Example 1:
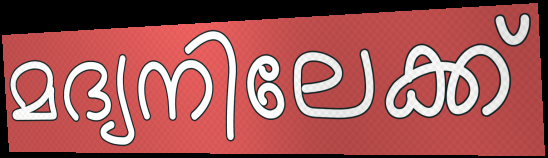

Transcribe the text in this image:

മദ്യനിലേക്ക്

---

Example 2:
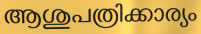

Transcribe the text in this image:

ആശുപത്രിക്കാര്യം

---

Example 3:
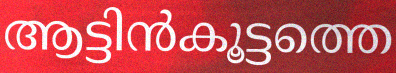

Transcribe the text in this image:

ആട്ടിൻകൂട്ടത്തെ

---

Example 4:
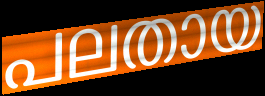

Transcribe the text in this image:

പലതായ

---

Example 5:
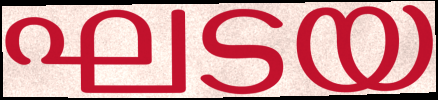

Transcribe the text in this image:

ഘടയ